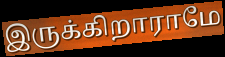
இருக்கிறாராமே